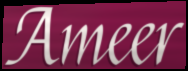
Ameer